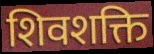
शिवशक्ति